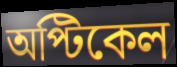
অপ্টিকেল